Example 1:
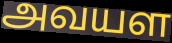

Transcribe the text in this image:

அவயள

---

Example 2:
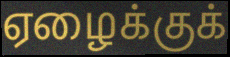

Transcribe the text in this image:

ஏழைக்குக்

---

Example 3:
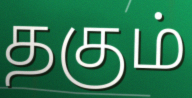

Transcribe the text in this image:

தகும்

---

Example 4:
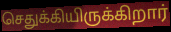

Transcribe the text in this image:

செதுக்கியிருக்கிறார்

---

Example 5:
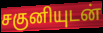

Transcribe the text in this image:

சகுனியுடன்